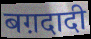
बग़दादी